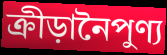
ক্রীড়ানৈপুণ্য